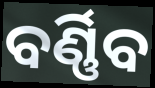
ବର୍ଣ୍ଣିବ